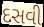
દસવી